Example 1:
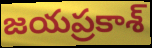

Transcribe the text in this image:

జయప్రకాశ్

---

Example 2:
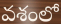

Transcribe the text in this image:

వశంలో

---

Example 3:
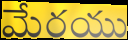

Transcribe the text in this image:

మేరయు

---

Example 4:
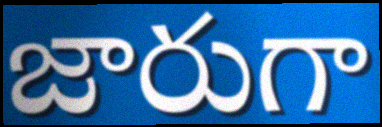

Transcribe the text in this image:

జారుగా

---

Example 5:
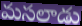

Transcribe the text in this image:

మసలాడు